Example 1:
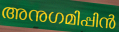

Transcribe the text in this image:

അനുഗമിപ്പിൻ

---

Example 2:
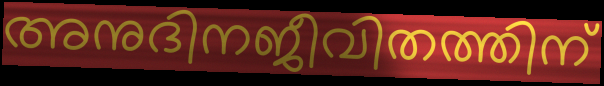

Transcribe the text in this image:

അനുദിനജീവിതത്തിന്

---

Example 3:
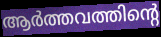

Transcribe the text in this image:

ആർത്തവത്തിന്റെ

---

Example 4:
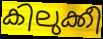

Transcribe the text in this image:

കിലുക്കീ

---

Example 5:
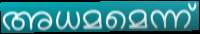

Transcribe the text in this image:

അധമമെന്ന്